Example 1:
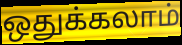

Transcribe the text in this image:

ஒதுக்கலாம்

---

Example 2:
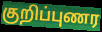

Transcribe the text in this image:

குறிப்புணர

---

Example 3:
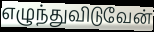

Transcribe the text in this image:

எழுந்துவிடுவேன்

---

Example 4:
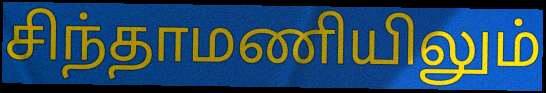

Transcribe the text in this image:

சிந்தாமணியிலும்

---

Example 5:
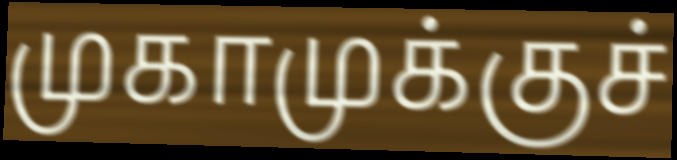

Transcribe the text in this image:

முகாமுக்குச்